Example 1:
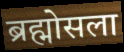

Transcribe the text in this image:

ब्रह्मोसला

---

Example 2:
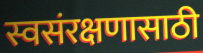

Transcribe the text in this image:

स्वसंरक्षणासाठी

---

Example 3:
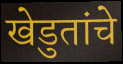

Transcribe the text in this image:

खेडुतांचे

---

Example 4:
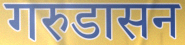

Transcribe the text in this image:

गरुडासन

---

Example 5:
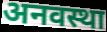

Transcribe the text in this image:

अनवस्था